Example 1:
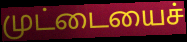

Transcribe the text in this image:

முட்டையைச்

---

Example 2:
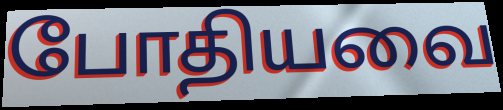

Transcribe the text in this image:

போதியவை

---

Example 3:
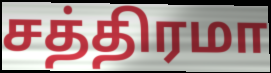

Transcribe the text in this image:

சத்திரமா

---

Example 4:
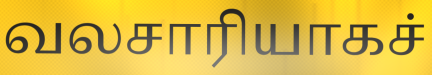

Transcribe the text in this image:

வலசாரியாகச்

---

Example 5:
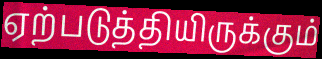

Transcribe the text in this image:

ஏற்படுத்தியிருக்கும்